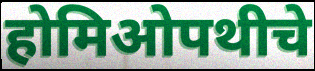
होमिओपथीचे